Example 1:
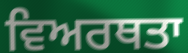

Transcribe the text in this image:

ਵਿਅਰਥਤਾ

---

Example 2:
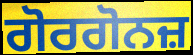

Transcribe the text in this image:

ਗੋਰਗੋਨਜ਼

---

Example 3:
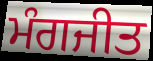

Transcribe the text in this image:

ਮੰਗਜੀਤ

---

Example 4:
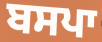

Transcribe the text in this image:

ਬਸਪਾ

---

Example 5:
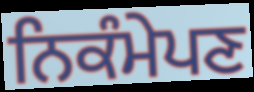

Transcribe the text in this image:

ਨਿਕੰਮੇਪਣ